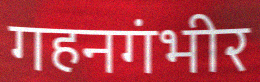
गहनगंभीर